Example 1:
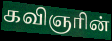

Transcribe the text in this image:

கவிஞரின்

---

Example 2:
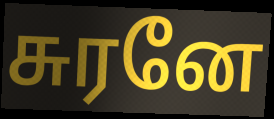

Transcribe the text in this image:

சுரனே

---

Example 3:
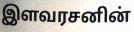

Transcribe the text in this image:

இளவரசனின்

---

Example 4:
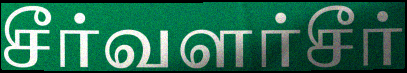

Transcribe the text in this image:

சீர்வளர்சீர்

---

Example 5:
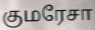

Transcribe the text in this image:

குமரேசா